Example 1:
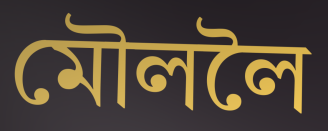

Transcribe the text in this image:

মৌললৈ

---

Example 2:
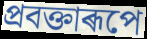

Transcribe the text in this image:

প্ৰবক্তাৰূপে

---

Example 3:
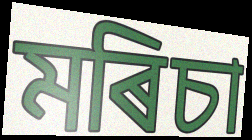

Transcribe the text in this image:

মৰিচা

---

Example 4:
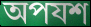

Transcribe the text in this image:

অপযশ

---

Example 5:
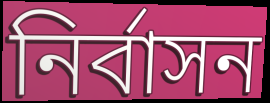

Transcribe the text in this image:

নিৰ্বাসন